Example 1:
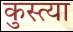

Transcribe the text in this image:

कुस्त्या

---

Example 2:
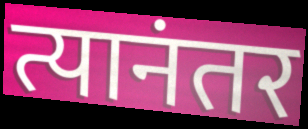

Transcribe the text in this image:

त्यानंतर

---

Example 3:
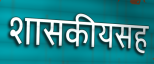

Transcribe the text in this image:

शासकीयसह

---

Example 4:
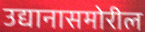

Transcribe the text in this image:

उद्यानासमोरील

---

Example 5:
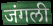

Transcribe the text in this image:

जंगली